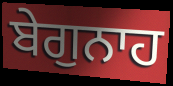
ਬੇਗੁਨਾਹ